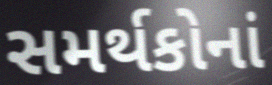
સમર્થકોનાં